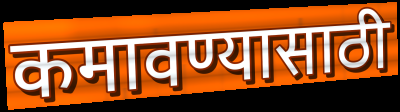
कमावण्यासाठी